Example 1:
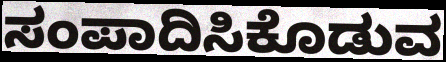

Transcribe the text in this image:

ಸಂಪಾದಿಸಿಕೊಡುವ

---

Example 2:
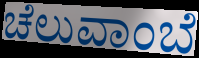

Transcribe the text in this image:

ಚೆಲುವಾಂಬೆ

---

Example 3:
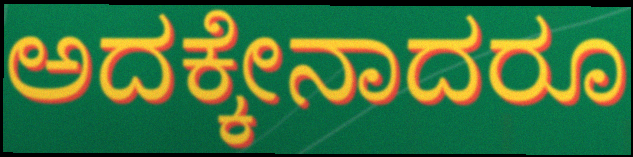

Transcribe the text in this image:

ಅದಕ್ಕೇನಾದರೂ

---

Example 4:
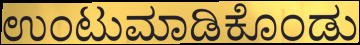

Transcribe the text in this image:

ಉಂಟುಮಾಡಿಕೊಂಡು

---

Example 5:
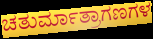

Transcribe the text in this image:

ಚತುರ್ಮಾತ್ರಾಗಣಗಳ